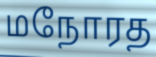
மநோரத